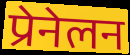
प्रेनेलन